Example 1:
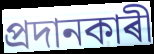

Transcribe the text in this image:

প্ৰদানকাৰী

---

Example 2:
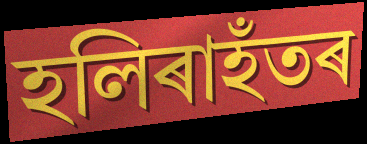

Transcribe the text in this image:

হলিৰাহঁতৰ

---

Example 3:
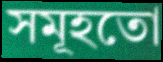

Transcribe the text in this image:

সমূহতো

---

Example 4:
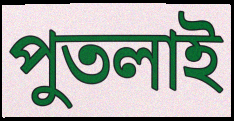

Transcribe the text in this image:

পুতলাই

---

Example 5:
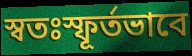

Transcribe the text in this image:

স্বতঃস্ফূৰ্তভাবে